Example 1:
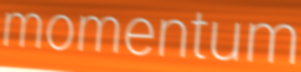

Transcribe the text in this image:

momentum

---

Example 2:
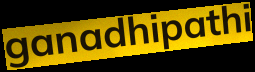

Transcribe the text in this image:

ganadhipathi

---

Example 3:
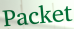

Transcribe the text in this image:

Packet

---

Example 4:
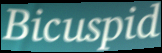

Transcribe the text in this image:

Bicuspid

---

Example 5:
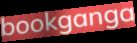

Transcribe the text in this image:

bookganga